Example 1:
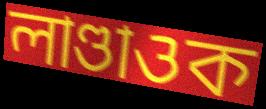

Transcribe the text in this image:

লাণ্ডাওক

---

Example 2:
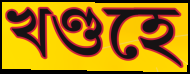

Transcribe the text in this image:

খণ্ডহে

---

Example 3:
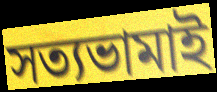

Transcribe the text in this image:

সত্যভামাই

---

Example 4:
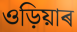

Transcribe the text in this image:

ওড়িয়াৰ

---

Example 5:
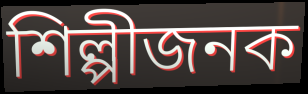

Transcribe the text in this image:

শিল্পীজনক